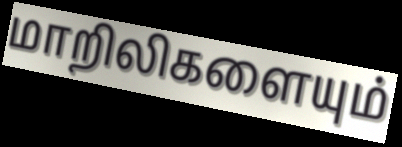
மாறிலிகளையும்